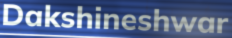
Dakshineshwar